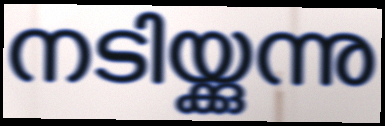
നടിയ്ക്കുന്നു